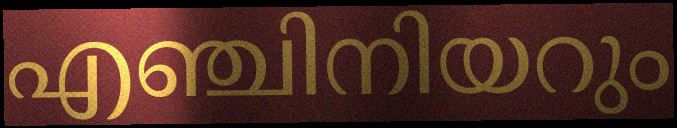
എഞ്ചിനിയറും